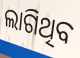
ଲାଗିଥିବ